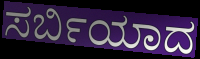
ಸರ್ಬಿಯಾದ